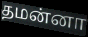
தமன்னா